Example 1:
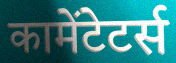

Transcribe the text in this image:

कामेंटेटर्स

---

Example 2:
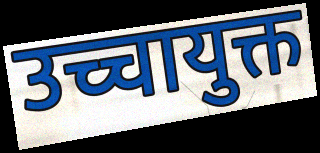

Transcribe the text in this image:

उच्चायुक्त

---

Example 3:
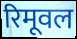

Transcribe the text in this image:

रिमूवल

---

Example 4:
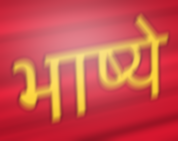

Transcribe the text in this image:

भाष्ये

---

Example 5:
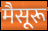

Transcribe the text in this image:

मैसूरू